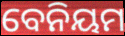
ବେନିୟମ